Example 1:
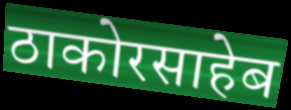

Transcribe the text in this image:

ठाकोरसाहेब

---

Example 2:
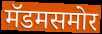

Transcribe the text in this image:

मॅडमसमोर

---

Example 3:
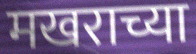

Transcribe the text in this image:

मखराच्या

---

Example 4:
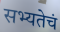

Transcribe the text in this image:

सभ्यतेचं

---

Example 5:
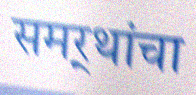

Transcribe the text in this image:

समर्थांचा